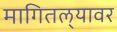
मागितल्यावर